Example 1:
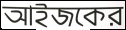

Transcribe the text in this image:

আইজকের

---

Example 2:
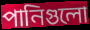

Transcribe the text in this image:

পানিগুলো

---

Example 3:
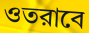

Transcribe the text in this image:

ওতরাবে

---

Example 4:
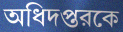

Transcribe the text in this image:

অধিদপ্তরকে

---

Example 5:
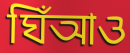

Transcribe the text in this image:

ঘিঁআও